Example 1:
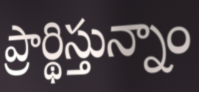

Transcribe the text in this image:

ప్రార్థిస్తున్నాం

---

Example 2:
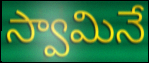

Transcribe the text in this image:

స్వామినే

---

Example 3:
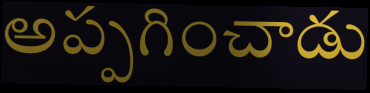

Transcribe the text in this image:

అప్పగించాడు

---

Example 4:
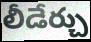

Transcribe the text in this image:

లీడేర్చు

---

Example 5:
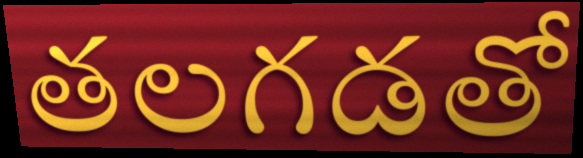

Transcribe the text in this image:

తలగడతో